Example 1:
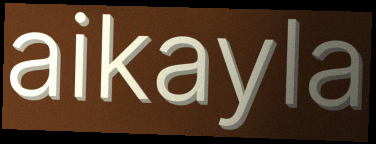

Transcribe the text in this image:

aikayla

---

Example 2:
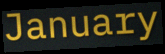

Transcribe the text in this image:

January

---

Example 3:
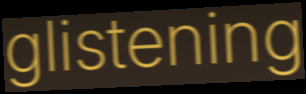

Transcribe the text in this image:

glistening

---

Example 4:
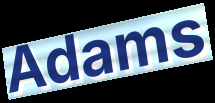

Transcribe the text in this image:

Adams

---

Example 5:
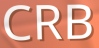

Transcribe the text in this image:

CRB